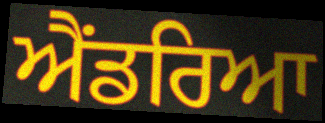
ਐਂਡਰਿਆ